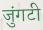
जुंगटी